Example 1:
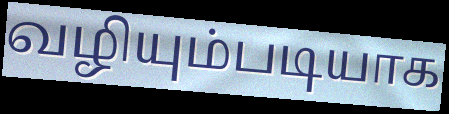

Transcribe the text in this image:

வழியும்படியாக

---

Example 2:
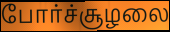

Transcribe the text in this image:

போர்ச்சூழலை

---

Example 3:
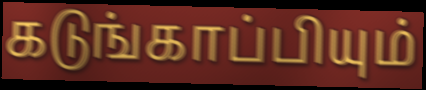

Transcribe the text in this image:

கடுங்காப்பியும்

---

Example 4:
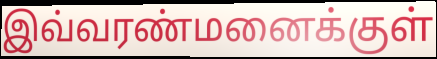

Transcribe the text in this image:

இவ்வரண்மனைக்குள்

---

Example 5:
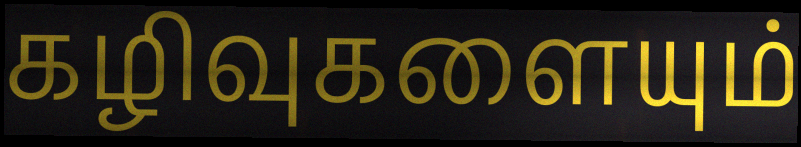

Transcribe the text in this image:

கழிவுகளையும்